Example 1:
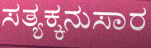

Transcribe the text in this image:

ಸತ್ಯಕ್ಕನುಸಾರ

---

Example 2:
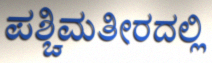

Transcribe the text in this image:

ಪಶ್ಚಿಮತೀರದಲ್ಲಿ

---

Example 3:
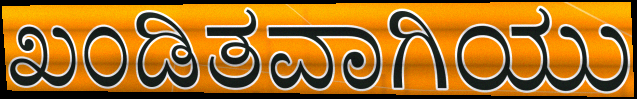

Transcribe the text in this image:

ಖಂಡಿತವಾಗಿಯು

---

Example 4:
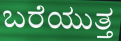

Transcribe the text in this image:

ಬರೆಯುತ್ತ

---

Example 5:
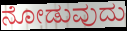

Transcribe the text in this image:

ನೋಡುವುದು